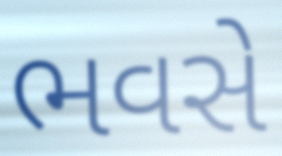
ભવસે